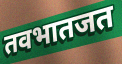
तवभातजत